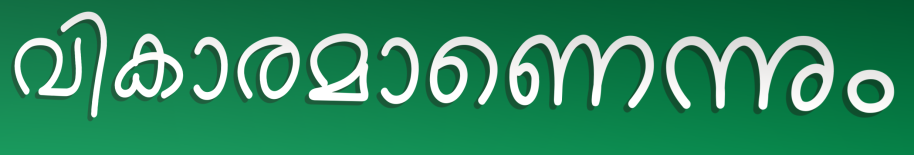
വികാരമാണെന്നും